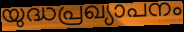
യുദ്ധപ്രഖ്യാപനം